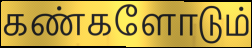
கண்களோடும்